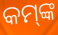
କମ୍‌ଙ୍କ